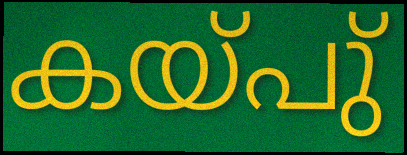
കയ്പു്